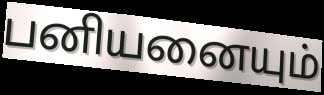
பனியனையும்